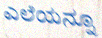
ಎಲೆಯನ್ನೂ